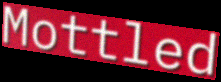
Mottled